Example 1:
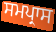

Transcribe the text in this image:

ਸਮਪ੍ਰਾਸ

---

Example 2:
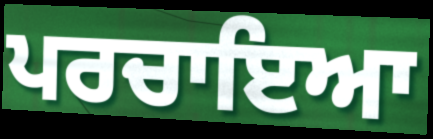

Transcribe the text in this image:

ਪਰਚਾਇਆ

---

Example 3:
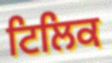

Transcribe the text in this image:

ਟਿਲਿਕ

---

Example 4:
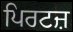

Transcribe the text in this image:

ਪਿਰਟਜ਼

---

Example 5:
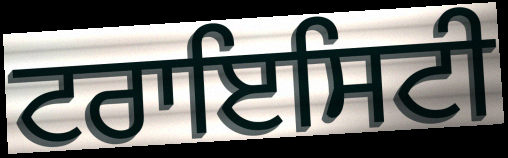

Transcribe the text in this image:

ਟਰਾਇਸਿਟੀ